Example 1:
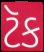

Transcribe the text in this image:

ટૅક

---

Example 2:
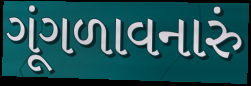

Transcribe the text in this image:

ગૂંગળાવનારું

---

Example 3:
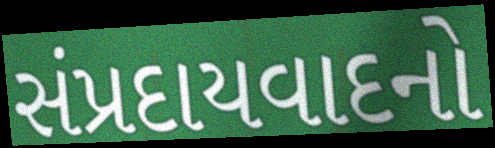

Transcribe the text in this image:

સંપ્રદાયવાદનો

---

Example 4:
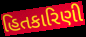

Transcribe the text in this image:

હિતકારિણી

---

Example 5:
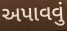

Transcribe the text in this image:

અપાવવું